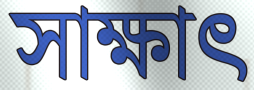
সাক্ষাৎ